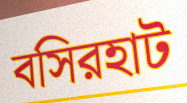
বসিরহাট